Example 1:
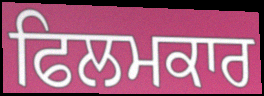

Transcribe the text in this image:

ਫਿਲਮਕਾਰ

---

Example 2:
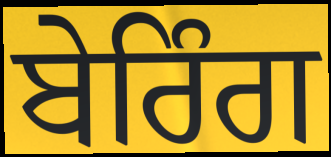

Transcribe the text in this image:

ਬੇਰਿੰਗ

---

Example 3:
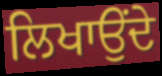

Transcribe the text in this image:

ਲਿਖਾਉਂਦੇ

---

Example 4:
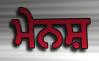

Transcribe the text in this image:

ਮੇਨਸ਼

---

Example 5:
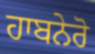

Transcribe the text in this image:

ਹਾਬਨੇਰੋ